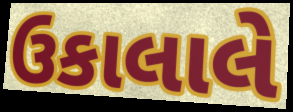
ઉકાલાલે